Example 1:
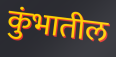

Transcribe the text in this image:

कुंभातील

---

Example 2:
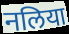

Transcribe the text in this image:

नलिया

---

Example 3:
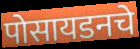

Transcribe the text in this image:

पोसायडनचे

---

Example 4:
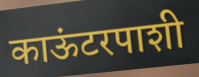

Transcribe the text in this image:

काऊंटरपाशी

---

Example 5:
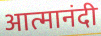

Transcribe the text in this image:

आत्मानंदी